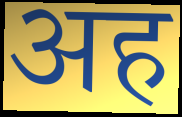
अह